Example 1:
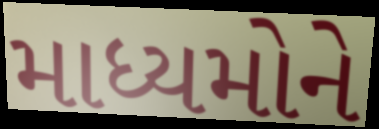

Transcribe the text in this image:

માધ્યમોને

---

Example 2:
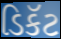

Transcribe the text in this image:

ડિકૅટ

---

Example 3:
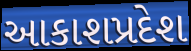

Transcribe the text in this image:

આકાશપ્રદેશ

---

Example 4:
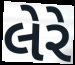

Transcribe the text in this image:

લેરે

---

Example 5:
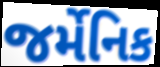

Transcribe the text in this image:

જર્મેનિક